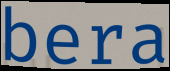
bera